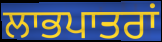
ਲਾਭਪਾਤਰਾਂ